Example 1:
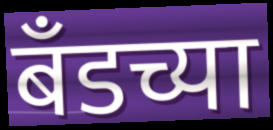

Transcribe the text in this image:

बँडच्या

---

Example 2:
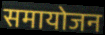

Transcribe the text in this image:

समायोजन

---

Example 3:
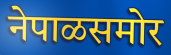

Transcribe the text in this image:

नेपाळसमोर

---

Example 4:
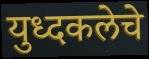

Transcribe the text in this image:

युध्दकलेचे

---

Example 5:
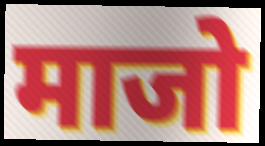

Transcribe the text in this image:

माजो